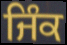
ਜਿੰਕ